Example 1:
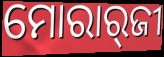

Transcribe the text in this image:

ମୋରାର୍‍ଜୀ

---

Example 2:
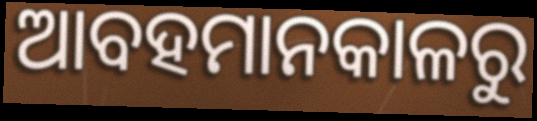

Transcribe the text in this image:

ଆବହମାନକାଳରୁ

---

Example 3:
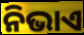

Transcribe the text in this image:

ନିଭାଏ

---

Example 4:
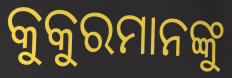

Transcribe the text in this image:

କୁକୁରମାନଙ୍କୁ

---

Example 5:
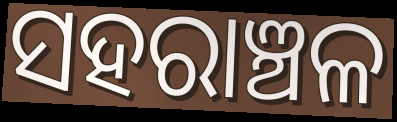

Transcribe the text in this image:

ସହରାଞ୍ଚଳ